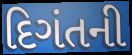
દિગંતની